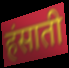
हंसाती